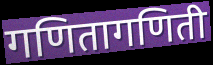
गणितागणिती